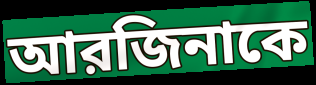
আরজিনাকে